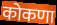
कोकणा